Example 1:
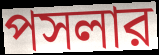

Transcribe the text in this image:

পসলার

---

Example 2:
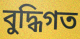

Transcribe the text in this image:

বুদ্ধিগত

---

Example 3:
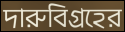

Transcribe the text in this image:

দারুবিগ্রহের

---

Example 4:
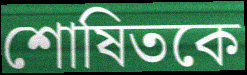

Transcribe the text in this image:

শোষিতকে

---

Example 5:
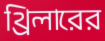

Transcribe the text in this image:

থ্রিলারের